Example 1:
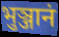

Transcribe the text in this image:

भुञ्जानं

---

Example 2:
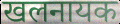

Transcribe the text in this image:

खलनायक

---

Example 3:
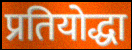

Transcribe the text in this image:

प्रतियोद्धा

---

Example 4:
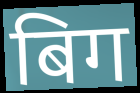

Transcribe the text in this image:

बिग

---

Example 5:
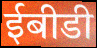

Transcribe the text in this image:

ईबीडी